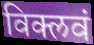
विक्लवं